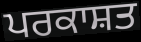
ਪਰਕਾਸ਼ਤ